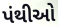
પંથીઓ